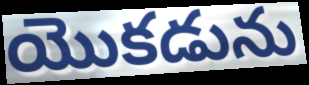
యొకడును